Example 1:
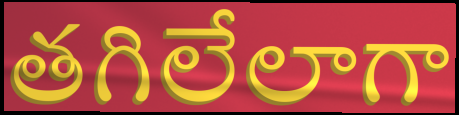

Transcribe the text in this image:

తగిలేలాగా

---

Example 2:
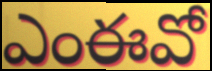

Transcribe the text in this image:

ఎంఈవో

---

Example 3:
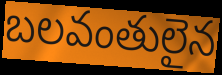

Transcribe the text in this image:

బలవంతులైన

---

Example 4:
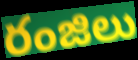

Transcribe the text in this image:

రంజిలు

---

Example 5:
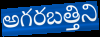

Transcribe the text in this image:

అగరబత్తిని